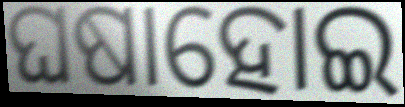
ଘଷାହୋଇ